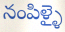
నంపిళ్ళై